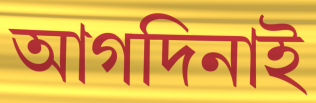
আগদিনাই